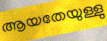
ആയതേയുള്ളു